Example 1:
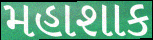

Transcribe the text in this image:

મહાશાક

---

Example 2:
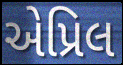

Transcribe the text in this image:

એપ્રિલ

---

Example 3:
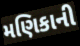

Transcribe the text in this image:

મણિકાની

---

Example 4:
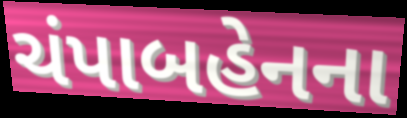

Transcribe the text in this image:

ચંપાબહેનના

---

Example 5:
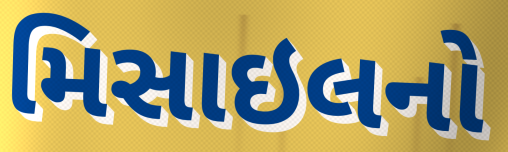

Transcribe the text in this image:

મિસાઇલનો